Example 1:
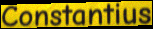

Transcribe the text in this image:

Constantius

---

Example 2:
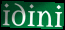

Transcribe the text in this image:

idini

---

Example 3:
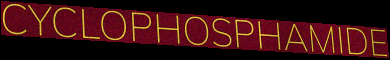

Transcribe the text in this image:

CYCLOPHOSPHAMIDE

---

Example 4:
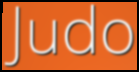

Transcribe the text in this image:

Judo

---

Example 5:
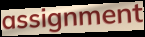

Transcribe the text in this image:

assignment